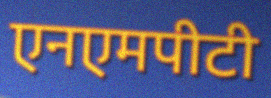
एनएमपीटी